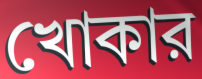
খোকার